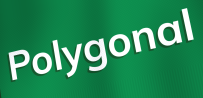
Polygonal